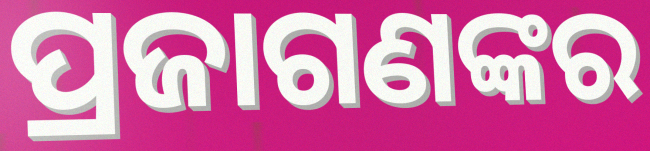
ପ୍ରଜାଗଣଙ୍କର